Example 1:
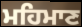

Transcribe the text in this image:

ਮਹਿਮਾਣ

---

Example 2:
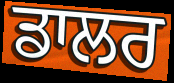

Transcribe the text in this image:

ਡਾਲਰ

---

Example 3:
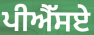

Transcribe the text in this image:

ਪੀਐੱਸਏ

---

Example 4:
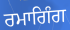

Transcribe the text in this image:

ਰਮਾਗਿੰਗ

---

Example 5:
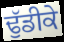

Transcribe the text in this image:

ਢੁੱਡੀਕੇ